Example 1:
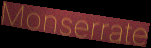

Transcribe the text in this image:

Monserrate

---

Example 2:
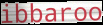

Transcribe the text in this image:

ibbaroo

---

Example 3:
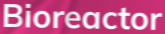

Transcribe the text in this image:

Bioreactor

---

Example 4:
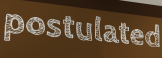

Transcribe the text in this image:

postulated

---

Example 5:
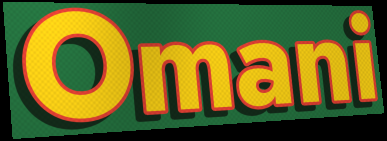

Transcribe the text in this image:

Omani